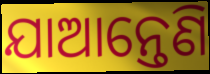
ଯାଆନ୍ତେଣି